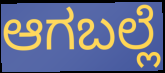
ಆಗಬಲ್ಲೆ